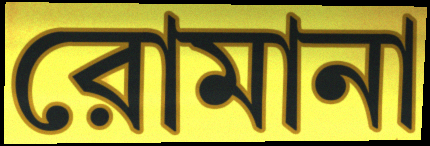
রোমানা